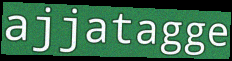
ajjatagge